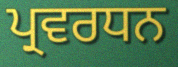
ਪ੍ਰਵਰਧਨ